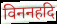
विननहदि